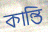
কান্তি